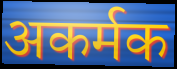
अकर्मक